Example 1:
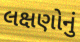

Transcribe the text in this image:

લક્ષણોનું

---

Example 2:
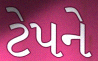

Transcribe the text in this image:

ટેપને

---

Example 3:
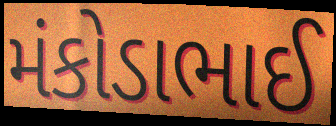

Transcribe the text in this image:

મંકોડાભાઈ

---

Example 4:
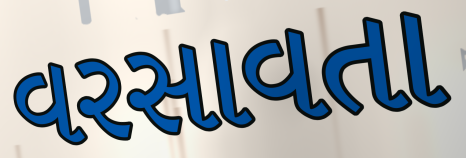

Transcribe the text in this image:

વરસાવતા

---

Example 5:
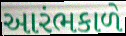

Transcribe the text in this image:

આરંભકાળે